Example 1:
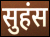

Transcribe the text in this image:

सुहंस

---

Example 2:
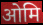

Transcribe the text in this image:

ओमि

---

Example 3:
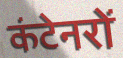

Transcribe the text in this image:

कंटेनरों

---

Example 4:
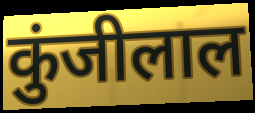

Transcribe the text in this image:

कुंजीलाल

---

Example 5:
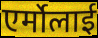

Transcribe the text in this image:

एर्मोलाई